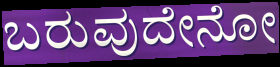
ಬರುವುದೇನೋ